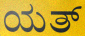
ಯತ್